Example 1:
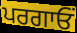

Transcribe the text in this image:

ਪਰਗਾਓਂ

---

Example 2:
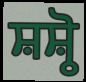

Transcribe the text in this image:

ਸ਼ਸ਼੍ਠੋ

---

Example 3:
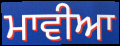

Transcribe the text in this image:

ਮਾਵੀਆ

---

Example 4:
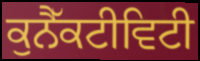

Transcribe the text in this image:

ਕੁਨੈੱਕਟੀਵਿਟੀ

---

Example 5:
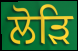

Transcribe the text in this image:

ਲੋੜਿ